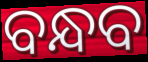
ବନ୍ଧବ